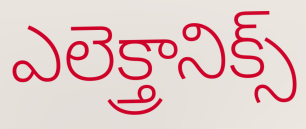
ఎలెక్త్రానిక్స్